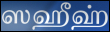
ஸஹீஹ்